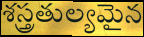
శస్త్రతుల్యమైన